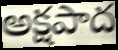
అక్షపాద